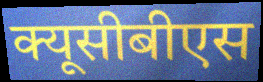
क्यूसीबीएस